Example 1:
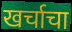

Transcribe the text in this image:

खर्चाचा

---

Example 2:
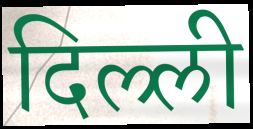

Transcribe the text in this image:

दिल्ली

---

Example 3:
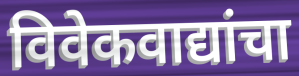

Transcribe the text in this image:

विवेकवाद्यांचा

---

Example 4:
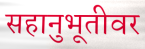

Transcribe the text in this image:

सहानुभूतीवर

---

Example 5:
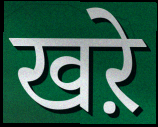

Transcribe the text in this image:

खऱे